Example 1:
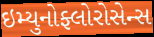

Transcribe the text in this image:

ઇમ્યુનોફ્લોરોસેન્સ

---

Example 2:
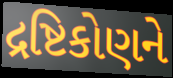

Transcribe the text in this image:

દ્રષ્ટિકોણને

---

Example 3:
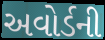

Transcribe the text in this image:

અવોર્ડની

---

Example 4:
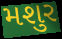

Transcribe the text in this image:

મશુર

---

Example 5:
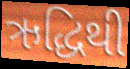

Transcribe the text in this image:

ઋદ્ધિથી